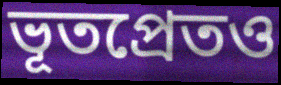
ভূতপ্রেতও